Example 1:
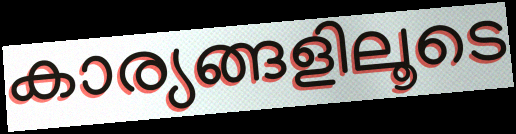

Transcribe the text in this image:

കാര്യങ്ങളിലൂടെ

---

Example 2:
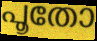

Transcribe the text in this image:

പൂതോ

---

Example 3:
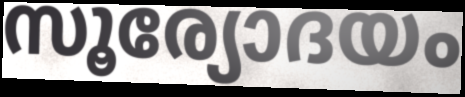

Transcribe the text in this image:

സൂര്യോദയം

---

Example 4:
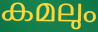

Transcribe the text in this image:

കമലും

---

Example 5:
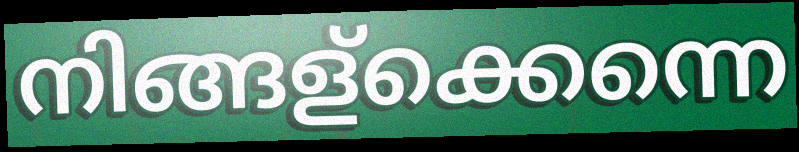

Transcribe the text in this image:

നിങ്ങള്ക്കെന്നെ